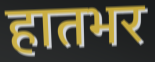
हातभर